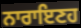
ਨਾਰਾਇਣਹ